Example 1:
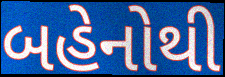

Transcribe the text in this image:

બહેનોથી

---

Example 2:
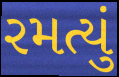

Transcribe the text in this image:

રમત્યું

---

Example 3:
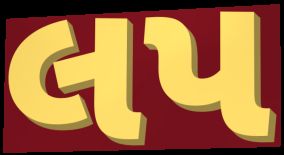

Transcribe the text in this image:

લપ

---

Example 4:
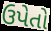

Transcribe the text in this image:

ઉપેતો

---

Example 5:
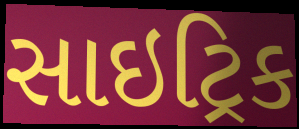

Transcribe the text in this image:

સાઇટ્રિક